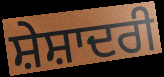
ਸ਼ੇਸ਼ਾਦਰੀ